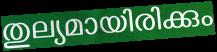
തുല്യമായിരിക്കും